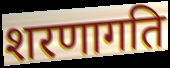
शरणागति